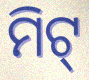
ମିଟ୍